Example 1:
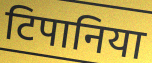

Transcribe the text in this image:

टिपानिया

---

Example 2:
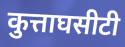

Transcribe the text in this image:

कुत्ताघसीटी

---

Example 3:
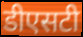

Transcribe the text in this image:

डीएसटी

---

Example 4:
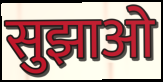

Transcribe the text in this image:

सुझाओ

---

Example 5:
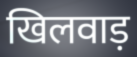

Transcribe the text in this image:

खिलवाड़